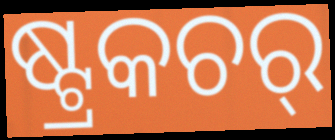
ଷ୍ଟ୍ରକଚର୍